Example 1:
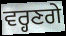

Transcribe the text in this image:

ਵਰ੍ਹਣਗੇ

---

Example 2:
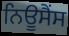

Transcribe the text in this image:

ਨਿਊਸੈਂਸ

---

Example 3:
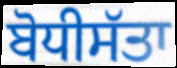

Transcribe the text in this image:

ਬੋਧੀਸੱਤਾ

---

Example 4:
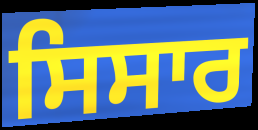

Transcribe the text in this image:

ਸਿਸਾਰ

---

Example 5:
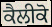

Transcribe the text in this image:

ਕੈਲੀਕੋ